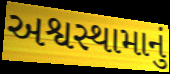
અશ્વસ્થામાનું